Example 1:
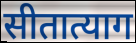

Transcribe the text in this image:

सीतात्याग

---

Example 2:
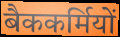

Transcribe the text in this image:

बैककर्मियों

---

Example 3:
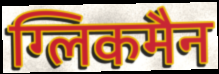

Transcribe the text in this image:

ग्लिकमैन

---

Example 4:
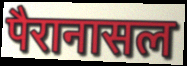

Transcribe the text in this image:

पैरानासल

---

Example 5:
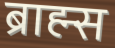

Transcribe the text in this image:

ब्राह्म्स